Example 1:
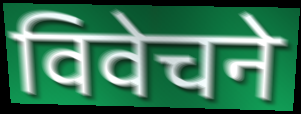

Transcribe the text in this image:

विवेचने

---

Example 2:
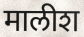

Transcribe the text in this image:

मालीश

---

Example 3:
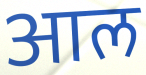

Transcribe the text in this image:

आल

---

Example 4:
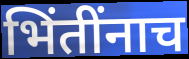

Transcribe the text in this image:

भिंतींनाच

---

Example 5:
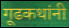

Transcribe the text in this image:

गूढकथांनी